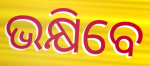
ଭକ୍ଷିବେ